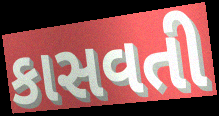
કાસવતી